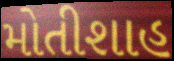
મોતીશાહ